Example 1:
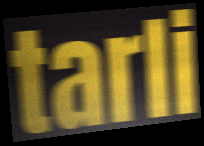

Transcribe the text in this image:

tarli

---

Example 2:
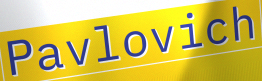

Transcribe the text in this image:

Pavlovich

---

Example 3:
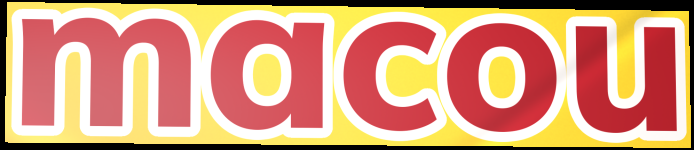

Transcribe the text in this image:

macou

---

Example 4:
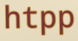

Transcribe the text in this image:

htpp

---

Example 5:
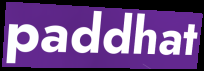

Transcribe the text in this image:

paddhat